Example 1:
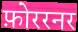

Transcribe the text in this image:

फ़ोररनर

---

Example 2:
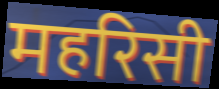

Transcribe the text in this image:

महरिसी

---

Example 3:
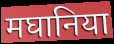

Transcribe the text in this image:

मघानिया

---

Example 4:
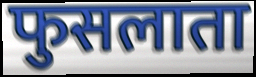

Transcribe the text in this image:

फुसलाता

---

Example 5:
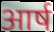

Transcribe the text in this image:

आर्ष